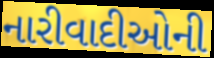
નારીવાદીઓની